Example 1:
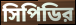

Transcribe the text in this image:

সিপিডির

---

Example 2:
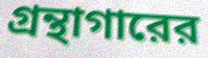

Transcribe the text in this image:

গ্রন্থাগারের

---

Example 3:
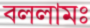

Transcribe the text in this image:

বললামঃ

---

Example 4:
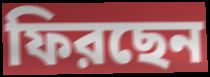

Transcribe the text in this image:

ফিরছেন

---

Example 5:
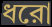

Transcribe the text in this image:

ধরো